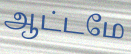
ஆட்டமே